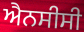
ਐਨਸੀਸੀ